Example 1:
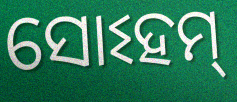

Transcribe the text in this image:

ସୋଽହମ୍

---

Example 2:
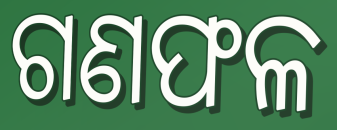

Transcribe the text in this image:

ଗଣଫଳ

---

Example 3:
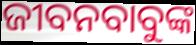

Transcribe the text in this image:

ଜୀବନବାବୁଙ୍କ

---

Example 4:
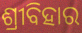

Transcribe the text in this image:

ଶ୍ରୀବିହାର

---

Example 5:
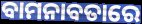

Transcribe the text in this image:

ବାମନାବତାରେ